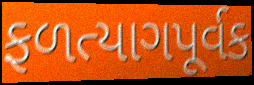
ફળત્યાગપૂર્વક